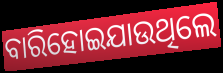
ବାରିହୋଇଯାଉଥିଲେ